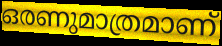
ഒരണുമാത്രമാണ്